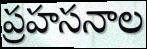
ప్రహసనాల